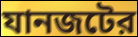
যানজটের